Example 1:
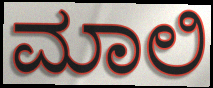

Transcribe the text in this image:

ಮಾಲಿ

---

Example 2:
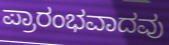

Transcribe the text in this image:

ಪ್ರಾರಂಭವಾದವು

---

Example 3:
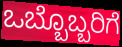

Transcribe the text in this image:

ಒಬ್ಬೊಬ್ಬರಿಗೆ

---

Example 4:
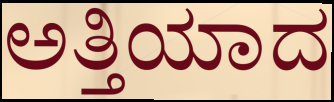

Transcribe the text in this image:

ಅತ್ತಿಯಾದ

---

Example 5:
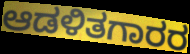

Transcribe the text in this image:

ಆಡಳಿತಗಾರರ